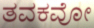
ತವಕವೋ